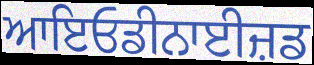
ਆਇਓਡੀਨਾਈਜ਼ਡ